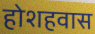
होशहवास